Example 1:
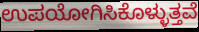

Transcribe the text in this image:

ಉಪಯೋಗಿಸಿಕೊಳ್ಳುತ್ತವೆ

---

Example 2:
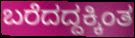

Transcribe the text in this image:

ಬರೆದದ್ದಕ್ಕಿಂತ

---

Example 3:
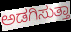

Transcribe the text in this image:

ಅಡಗಿಸುತ್ತಾ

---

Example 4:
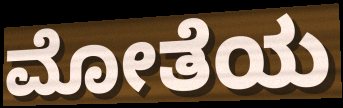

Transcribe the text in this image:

ಮೋತೆಯ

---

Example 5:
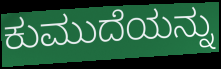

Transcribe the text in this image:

ಕುಮುದೆಯನ್ನು